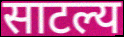
साटल्य